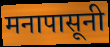
मनापासूनी